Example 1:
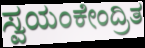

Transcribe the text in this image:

ಸ್ವಯಂಕೇಂದ್ರಿತ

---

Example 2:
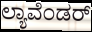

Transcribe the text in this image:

ಲ್ಯಾವೆಂಡರ್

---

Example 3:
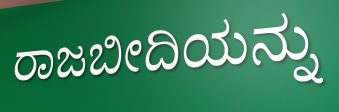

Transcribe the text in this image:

ರಾಜಬೀದಿಯನ್ನು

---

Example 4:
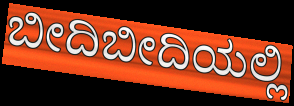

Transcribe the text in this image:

ಬೀದಿಬೀದಿಯಲ್ಲಿ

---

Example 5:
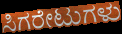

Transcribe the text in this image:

ಸಿಗರೇಟುಗಳು